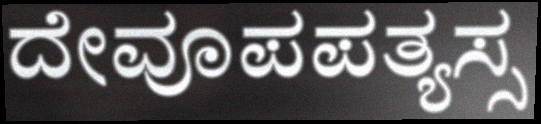
ದೇವೂಪಪತ್ಯಸ್ಸ